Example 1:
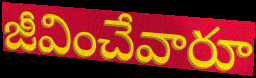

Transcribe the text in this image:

జీవించేవారూ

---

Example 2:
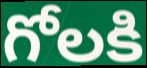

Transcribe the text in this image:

గోలకి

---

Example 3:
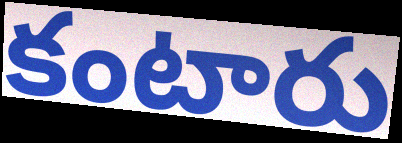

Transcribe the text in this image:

కంటారు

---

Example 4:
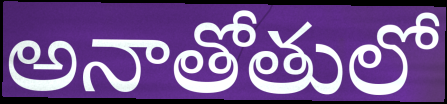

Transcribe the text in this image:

అనాతోతులో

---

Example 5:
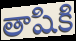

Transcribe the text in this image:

తాషికి